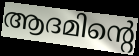
ആദമിന്റെ